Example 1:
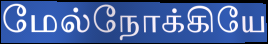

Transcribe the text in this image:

மேல்நோக்கியே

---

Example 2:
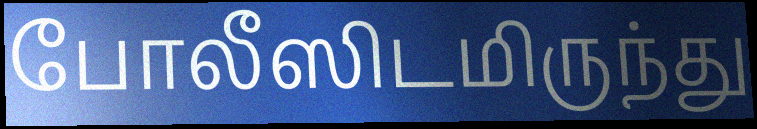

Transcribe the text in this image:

போலீஸிடமிருந்து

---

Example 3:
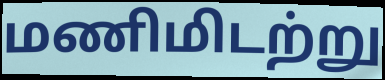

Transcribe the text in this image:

மணிமிடற்று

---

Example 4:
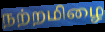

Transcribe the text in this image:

நற்றமிழை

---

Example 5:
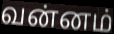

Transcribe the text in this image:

வன்னம்